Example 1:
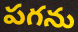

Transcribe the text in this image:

పగను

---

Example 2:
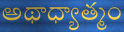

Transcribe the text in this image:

అథాధ్యాత్మం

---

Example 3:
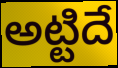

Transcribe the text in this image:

అట్టిదే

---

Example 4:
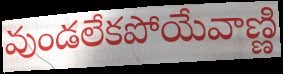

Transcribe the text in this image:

వుండలేకపోయేవాణ్ణి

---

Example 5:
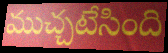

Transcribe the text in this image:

ముచ్చటేసింది